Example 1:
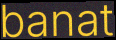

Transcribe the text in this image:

banat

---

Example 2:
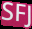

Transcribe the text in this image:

SFJ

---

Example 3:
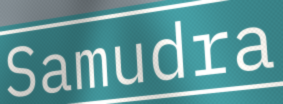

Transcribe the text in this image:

Samudra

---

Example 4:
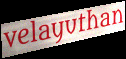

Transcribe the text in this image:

velayuthan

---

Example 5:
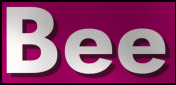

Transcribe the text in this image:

Bee